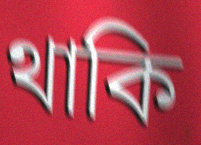
থাকি